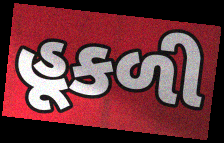
હૂકળી